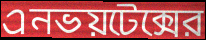
এনভয়টেক্সের